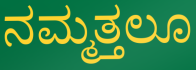
ನಮ್ಮತ್ತಲೂ